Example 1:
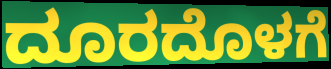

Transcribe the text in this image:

ದೂರದೊಳಗೆ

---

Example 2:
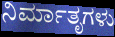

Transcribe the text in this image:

ನಿರ್ಮಾತೃಗಳು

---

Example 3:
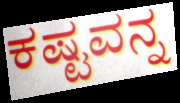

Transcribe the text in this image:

ಕಷ್ಟವನ್ನ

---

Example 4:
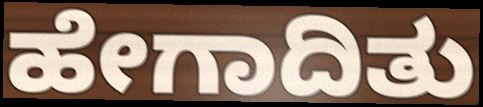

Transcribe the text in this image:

ಹೇಗಾದಿತು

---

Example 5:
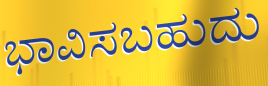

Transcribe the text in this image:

ಭಾವಿಸಬಹುದು